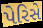
પેરિસે